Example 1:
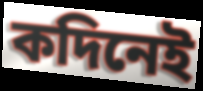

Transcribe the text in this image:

কদিনেই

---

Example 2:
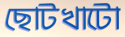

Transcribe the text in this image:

ছোটখাটো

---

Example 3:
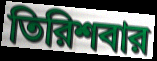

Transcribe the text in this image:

তিরিশবার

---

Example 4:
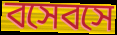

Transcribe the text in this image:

বসেবসে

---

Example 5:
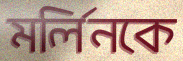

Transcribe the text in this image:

মর্লিনকে